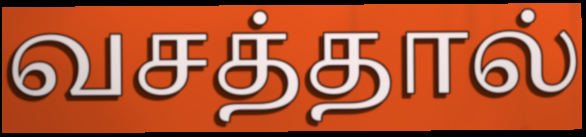
வசத்தால்